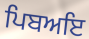
ਪਿਬਅਇ